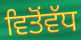
ਵਿਤੋਂਵੱਧ